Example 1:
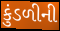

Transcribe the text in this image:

કુંડળીની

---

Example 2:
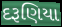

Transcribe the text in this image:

દરૂણિયા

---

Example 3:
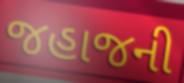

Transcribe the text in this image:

જહાજની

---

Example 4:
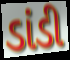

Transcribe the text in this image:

ડાંડી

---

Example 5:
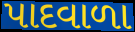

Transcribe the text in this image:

પાદવાળા